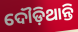
ଦୌଡ଼ିଥାନ୍ତି